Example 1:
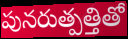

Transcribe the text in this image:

పునరుత్పత్తితో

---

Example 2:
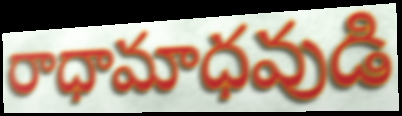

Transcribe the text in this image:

రాధామాధవుడి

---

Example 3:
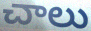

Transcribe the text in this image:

చాలు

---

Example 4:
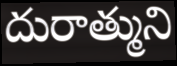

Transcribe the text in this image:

దురాత్ముని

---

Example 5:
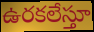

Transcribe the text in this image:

ఉరకలేస్తూ